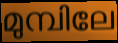
മുമ്പിലേ